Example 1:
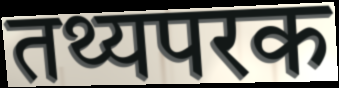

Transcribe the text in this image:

तथ्यपरक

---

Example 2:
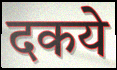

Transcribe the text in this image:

दकये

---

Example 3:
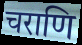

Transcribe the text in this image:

चराणि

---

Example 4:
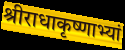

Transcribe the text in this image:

श्रीराधाकृष्णाभ्यां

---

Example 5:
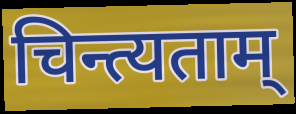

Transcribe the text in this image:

चिन्त्यताम्